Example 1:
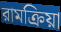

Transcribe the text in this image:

রামক্রিয়া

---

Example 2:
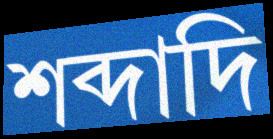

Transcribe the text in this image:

শব্দাদি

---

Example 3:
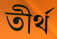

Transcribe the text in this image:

তীর্থ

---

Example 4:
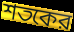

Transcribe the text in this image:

শতকের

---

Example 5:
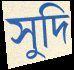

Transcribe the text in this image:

সুদি